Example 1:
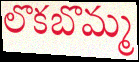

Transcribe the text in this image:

లొకబొమ్మ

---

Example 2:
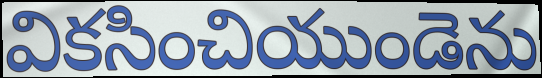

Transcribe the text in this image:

వికసించియుండెను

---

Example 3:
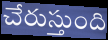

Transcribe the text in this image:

చేరుస్తుంది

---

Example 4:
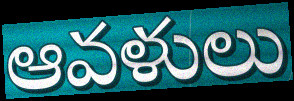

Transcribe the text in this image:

ఆవళులు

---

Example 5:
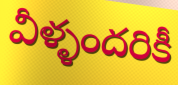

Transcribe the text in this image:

వీళ్ళందరికీ